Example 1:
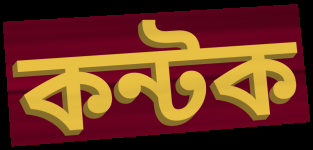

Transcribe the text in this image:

কন্টক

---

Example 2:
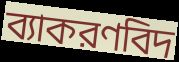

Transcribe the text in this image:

ব্যাকরণবিদ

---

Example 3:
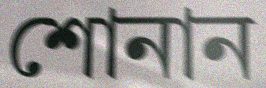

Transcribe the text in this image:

শোনান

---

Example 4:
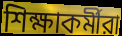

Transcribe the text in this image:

শিক্ষাকর্মীরা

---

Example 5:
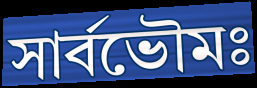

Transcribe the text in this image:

সার্বভৌমঃ